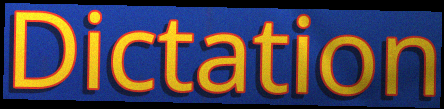
Dictation